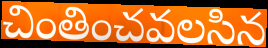
చింతించవలసిన